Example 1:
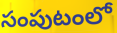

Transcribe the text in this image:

సంపుటంలో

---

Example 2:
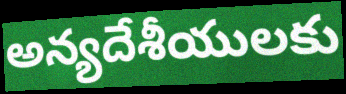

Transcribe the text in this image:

అన్యదేశీయులకు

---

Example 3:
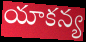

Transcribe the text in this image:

యాకన్య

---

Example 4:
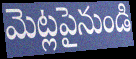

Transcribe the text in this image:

మెట్లపైనుండి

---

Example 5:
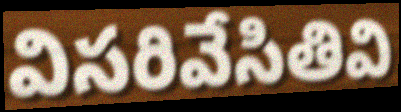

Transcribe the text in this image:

విసరివేసితివి